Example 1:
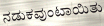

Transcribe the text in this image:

ನಡುಕವುಂಟಾಯಿತು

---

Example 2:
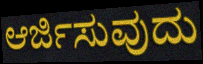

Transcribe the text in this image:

ಆರ್ಜಿಸುವುದು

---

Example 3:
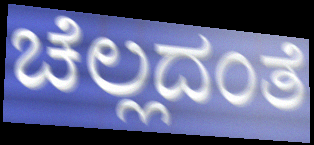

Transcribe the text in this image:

ಚೆಲ್ಲದಂತೆ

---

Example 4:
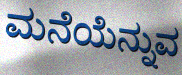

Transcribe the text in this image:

ಮನೆಯೆನ್ನುವ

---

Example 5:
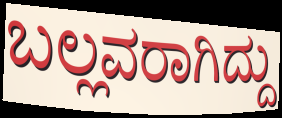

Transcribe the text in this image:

ಬಲ್ಲವರಾಗಿದ್ದು